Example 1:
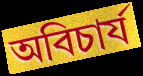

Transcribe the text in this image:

অবিচার্য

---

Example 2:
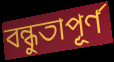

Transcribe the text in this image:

বন্ধুতাপূর্ণ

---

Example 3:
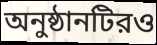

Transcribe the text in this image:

অনুষ্ঠানটিরও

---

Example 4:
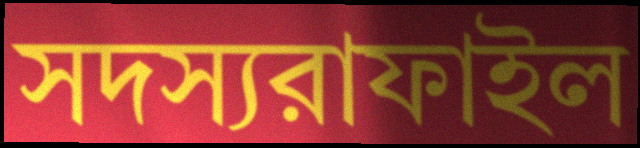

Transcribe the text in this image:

সদস্যরাফাইল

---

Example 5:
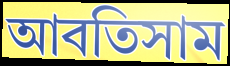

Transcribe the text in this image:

আবতিসাম